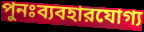
পুনঃব্যবহারযোগ্য